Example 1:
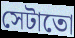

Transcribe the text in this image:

সেটাতো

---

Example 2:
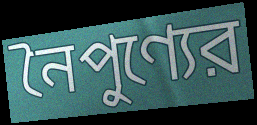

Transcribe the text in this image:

নৈপুণ্যের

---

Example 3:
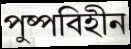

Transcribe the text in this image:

পুষ্পবিহীন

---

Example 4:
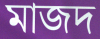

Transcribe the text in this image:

মাজদ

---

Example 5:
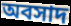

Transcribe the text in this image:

অবসাদ